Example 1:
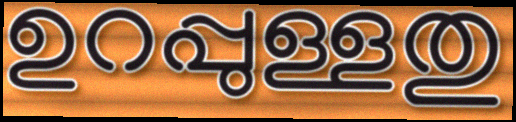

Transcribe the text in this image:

ഉറപ്പുള്ളതു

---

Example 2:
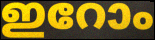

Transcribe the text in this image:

ഇറോം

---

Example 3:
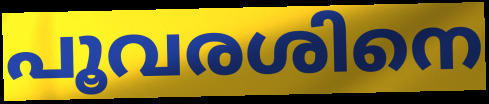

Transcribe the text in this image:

പൂവരശിനെ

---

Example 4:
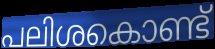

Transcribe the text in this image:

പലിശകൊണ്ട്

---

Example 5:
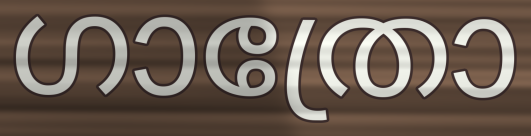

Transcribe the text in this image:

ഗാത്രോ